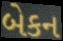
બેકન